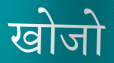
खोजो